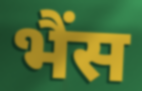
भैंस